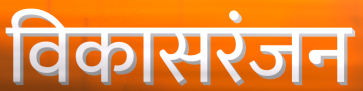
विकासरंजन